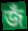
জঁ